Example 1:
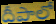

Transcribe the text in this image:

దీపాలో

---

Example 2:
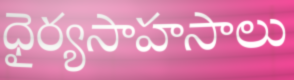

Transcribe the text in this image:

ధైర్యసాహసాలు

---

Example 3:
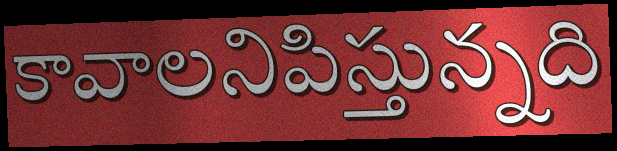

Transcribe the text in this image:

కావాలనిపిస్తున్నది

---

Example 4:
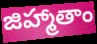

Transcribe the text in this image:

జిహ్మాతాం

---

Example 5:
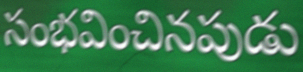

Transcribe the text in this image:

సంభవించినపుడు